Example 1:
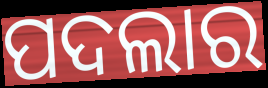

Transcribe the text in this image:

ପଦଲାର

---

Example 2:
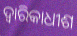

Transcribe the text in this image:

ଦ୍ୱାରିକାଧୀଶ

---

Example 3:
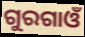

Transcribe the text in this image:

ଗୁରଗାଓଁ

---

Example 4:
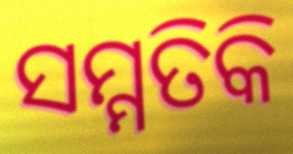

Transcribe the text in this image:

ସମ୍ମତିକି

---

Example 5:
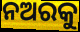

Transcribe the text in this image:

ନଅରକୁ